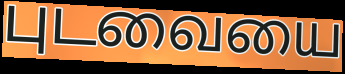
புடவையை